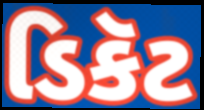
ડિકૅટ